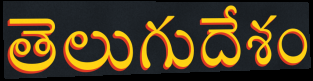
తెలుగుదేశం